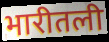
भारीतली